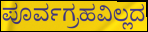
ಪೂರ್ವಗ್ರಹವಿಲ್ಲದ